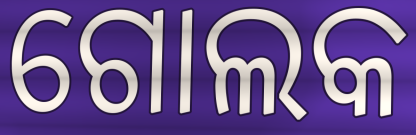
ଗୋଲକ